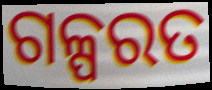
ଗଳ୍ପରତ